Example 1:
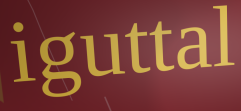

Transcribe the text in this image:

iguttal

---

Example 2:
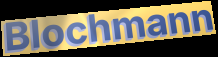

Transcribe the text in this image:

Blochmann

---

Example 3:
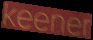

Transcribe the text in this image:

keener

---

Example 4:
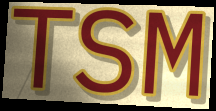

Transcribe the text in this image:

TSM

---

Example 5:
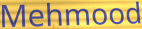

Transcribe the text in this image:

Mehmood